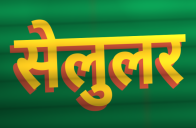
सेलुलर